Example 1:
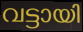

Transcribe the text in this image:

വട്ടായി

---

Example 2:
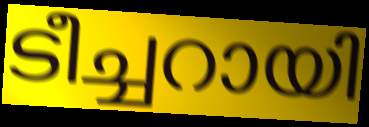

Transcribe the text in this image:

ടീച്ചറായി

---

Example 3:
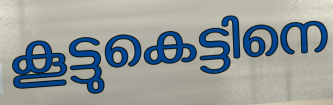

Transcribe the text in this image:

കൂട്ടുകെട്ടിനെ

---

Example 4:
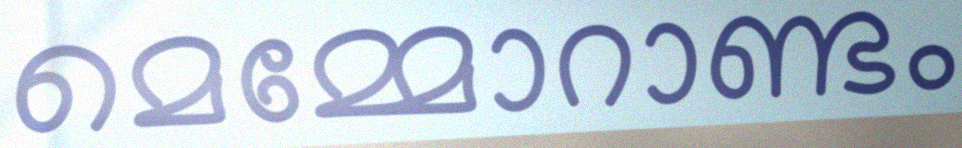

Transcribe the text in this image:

മെമ്മോറാണ്ടം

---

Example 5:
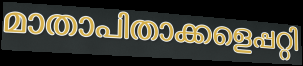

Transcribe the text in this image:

മാതാപിതാക്കളെപ്പറ്റി